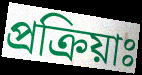
প্রক্রিয়াঃ